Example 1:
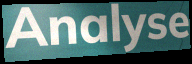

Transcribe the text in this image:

Analyse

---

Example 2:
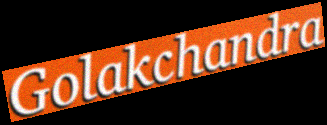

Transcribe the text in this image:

Golakchandra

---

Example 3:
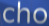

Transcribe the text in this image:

cho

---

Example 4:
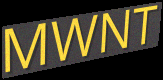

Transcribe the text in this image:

MWNT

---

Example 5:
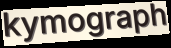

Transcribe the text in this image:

kymograph